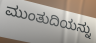
ಮುಂತುದಿಯನ್ನು